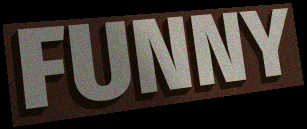
FUNNY